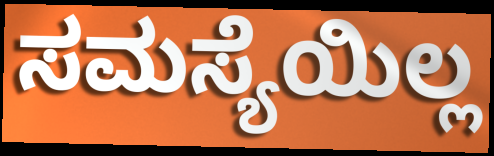
ಸಮಸ್ಯೆಯಿಲ್ಲ